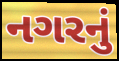
નગરનું